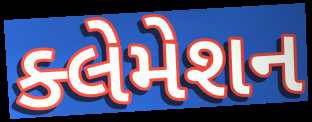
ક્લેમેશન